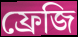
ফ্রেজি